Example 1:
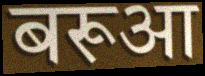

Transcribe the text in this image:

बरूआ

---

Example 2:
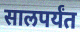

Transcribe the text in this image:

सालपर्यंत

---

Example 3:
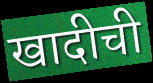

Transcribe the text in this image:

खादीची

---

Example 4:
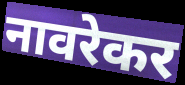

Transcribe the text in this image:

नावरेकर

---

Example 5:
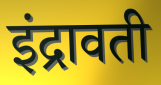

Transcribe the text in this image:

इंद्रावती